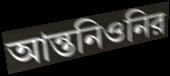
আন্তনিওনির